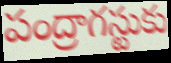
పంద్రాగస్టుకు